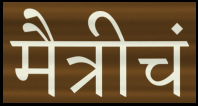
मैत्रीचं